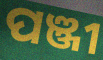
ପଞ୍ଜୀ